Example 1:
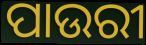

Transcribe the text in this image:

ପାଉରୀ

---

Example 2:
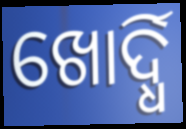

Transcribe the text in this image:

ଖୋର୍ଦ୍ଧି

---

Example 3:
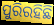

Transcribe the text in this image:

ପୁରିରହିଛି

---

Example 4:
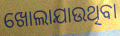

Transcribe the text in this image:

ଖୋଲାଯାଉଥିବା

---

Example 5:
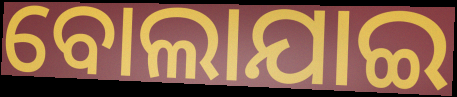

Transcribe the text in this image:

ବୋଲାଯାଇ